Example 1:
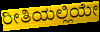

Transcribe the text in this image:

ರೀತಿಯಲ್ಲಿಯೇ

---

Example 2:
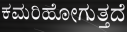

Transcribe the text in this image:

ಕಮರಿಹೋಗುತ್ತದೆ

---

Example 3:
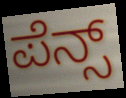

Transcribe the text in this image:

ಪೆನ್ಸ್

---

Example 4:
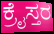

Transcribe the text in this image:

ಕ್ರೈಸ್ತರ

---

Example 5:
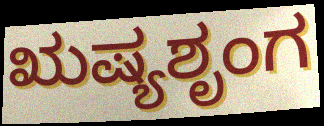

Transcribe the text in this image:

ಋಷ್ಯಶೃಂಗ